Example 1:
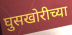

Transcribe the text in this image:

घुसखोरीच्या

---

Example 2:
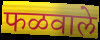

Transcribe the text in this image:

फळवाले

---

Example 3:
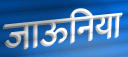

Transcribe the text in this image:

जाऊनिया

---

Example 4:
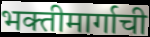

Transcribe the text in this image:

भक्तीमार्गाची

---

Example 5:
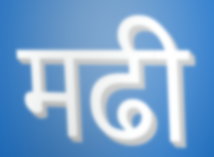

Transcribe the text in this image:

मढी